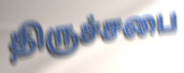
திருச்சபை